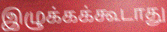
இழுக்கக்கூடாது